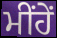
ਮੀਂਹੇਂ